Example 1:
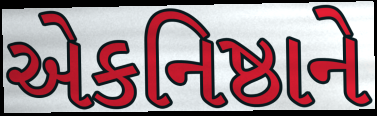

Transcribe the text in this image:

એકનિષ્ઠાને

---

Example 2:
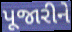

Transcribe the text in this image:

પૂજારીને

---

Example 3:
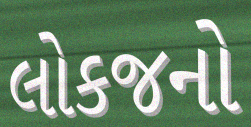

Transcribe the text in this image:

લોકજનો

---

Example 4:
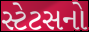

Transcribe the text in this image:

સ્ટેટસનો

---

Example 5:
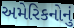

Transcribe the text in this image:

અમેરિકનોનું